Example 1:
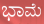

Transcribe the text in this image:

ಭಾಮೆ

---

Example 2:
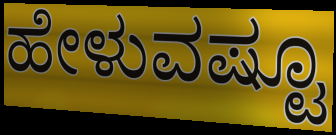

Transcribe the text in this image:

ಹೇಳುವಷ್ಟೂ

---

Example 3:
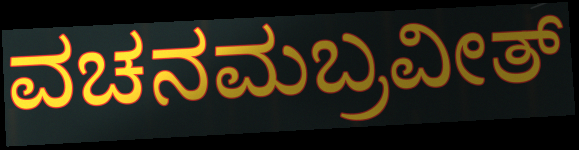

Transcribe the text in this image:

ವಚನಮಬ್ರವೀತ್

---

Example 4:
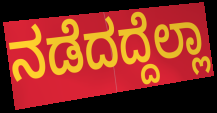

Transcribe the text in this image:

ನಡೆದದ್ದೆಲ್ಲಾ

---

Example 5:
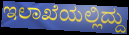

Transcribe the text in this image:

ಇಲಾಖೆಯಲ್ಲಿದ್ದು